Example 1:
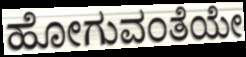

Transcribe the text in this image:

ಹೋಗುವಂತೆಯೇ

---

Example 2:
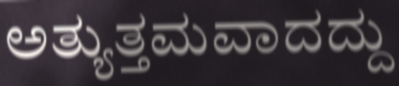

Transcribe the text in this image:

ಅತ್ಯುತ್ತಮವಾದದ್ದು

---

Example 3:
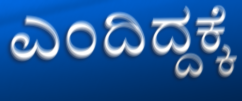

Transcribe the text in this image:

ಎಂದಿದ್ದಕ್ಕೆ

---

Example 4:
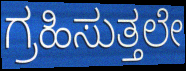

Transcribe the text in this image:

ಗ್ರಹಿಸುತ್ತಲೇ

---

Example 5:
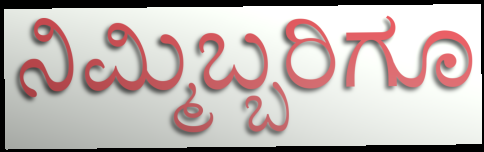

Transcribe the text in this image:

ನಿಮ್ಮಿಬ್ಬರಿಗೂ